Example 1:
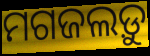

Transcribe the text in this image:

ମଗଜଲଡ଼ୁ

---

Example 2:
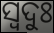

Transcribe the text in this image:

ସ୍ବଦୁଃ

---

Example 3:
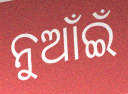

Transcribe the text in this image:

ନୁଆଁଇଁ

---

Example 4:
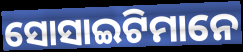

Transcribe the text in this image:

ସୋସାଇଟିମାନେ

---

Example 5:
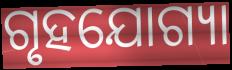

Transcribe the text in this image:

ଗୃହଯୋଗ୍ୟା